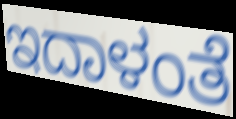
ಇದಾಳಂತೆ